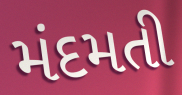
મંદમતી